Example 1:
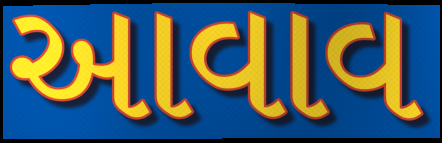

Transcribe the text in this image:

આવાવ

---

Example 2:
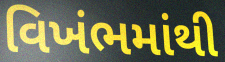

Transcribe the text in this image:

વિખંભમાંથી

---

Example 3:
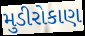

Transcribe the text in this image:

મુડીરોકાણ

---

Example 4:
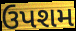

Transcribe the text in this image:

ઉપશમ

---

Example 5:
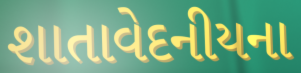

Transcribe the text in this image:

શાતાવેદનીયના